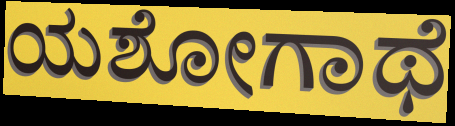
ಯಶೋಗಾಥೆ